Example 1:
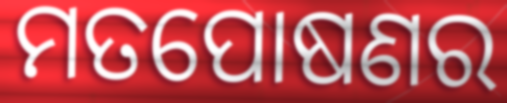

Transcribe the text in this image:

ମତପୋଷଣର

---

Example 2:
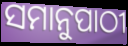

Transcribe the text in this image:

ସମାନୁପାଠୀ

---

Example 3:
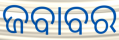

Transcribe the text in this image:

ଜବାବର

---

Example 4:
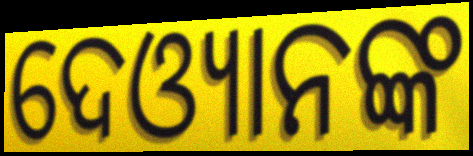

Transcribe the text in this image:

ଦେଓ୍ୟାନଙ୍କ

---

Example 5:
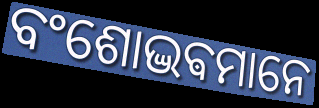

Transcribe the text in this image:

ବଂଶୋଦ୍ଭଵମାନେ